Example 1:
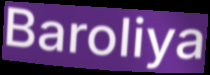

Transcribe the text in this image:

Baroliya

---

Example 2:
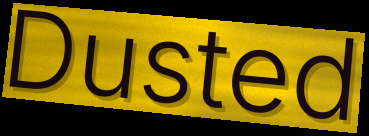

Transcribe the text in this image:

Dusted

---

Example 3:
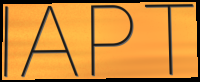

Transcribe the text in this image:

IAPT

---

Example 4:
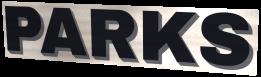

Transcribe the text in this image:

PARKS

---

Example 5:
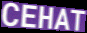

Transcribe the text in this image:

CEHAT